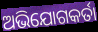
ଅଭିଯୋଗକର୍ତା